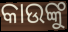
କାଉଙ୍କୁ